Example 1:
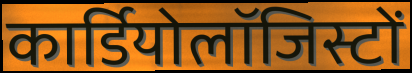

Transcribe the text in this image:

कार्डियोलॉजिस्टों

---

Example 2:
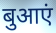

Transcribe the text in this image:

बुआएं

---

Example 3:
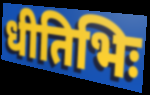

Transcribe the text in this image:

धीतिभिः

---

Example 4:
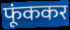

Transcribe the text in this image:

फूंककर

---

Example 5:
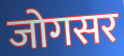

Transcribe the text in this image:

जोगसर